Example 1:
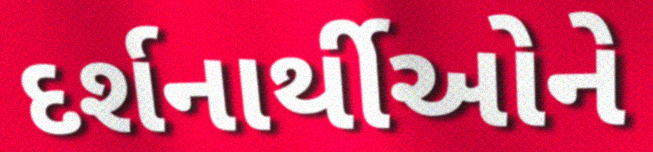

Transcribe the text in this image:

દર્શનાર્થીઓને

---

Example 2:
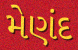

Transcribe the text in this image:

મેણંદ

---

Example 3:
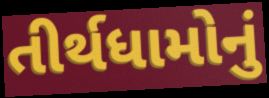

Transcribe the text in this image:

તીર્થધામોનું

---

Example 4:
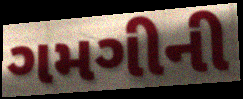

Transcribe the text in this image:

ગમગીની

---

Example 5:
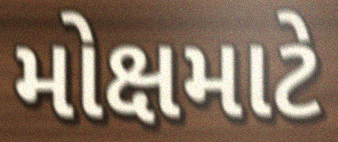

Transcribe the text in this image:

મોક્ષમાટે